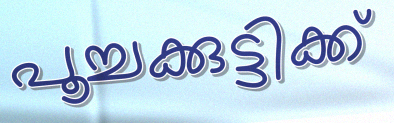
പൂച്ചക്കുട്ടിക്ക്